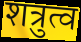
शत्रुत्व